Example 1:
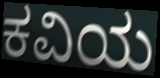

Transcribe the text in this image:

ಕವಿಯ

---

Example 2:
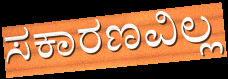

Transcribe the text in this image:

ಸಕಾರಣವಿಲ್ಲ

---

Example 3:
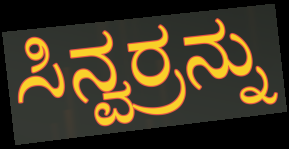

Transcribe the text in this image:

ಸಿನ್ವರ್ರನ್ನು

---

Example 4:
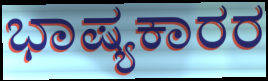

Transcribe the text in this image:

ಭಾಷ್ಯಕಾರರ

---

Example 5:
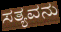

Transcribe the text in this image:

ಸತ್ಯವನು